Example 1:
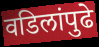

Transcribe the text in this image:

वडिलांपुढे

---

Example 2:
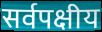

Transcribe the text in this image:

सर्वपक्षीय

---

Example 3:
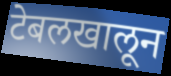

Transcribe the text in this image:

टेबलखालून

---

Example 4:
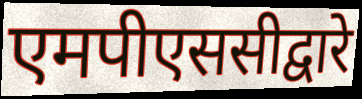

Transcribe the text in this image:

एमपीएससीद्वारे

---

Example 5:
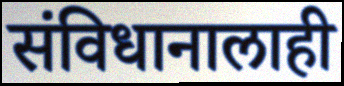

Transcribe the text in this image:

संविधानालाही